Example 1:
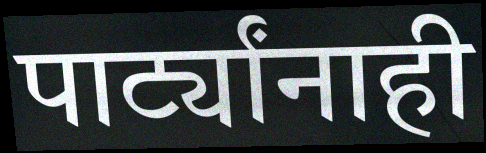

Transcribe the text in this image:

पार्ट्यांनाही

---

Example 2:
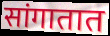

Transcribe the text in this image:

सांगातात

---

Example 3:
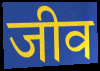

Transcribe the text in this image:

जीव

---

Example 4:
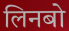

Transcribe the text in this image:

लिनबो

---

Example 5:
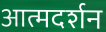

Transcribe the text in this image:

आत्मदर्शन